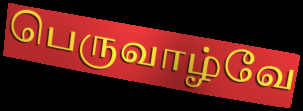
பெருவாழ்வே